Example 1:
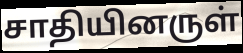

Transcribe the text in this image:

சாதியினருள்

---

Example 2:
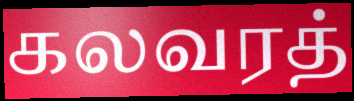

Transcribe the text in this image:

கலவரத்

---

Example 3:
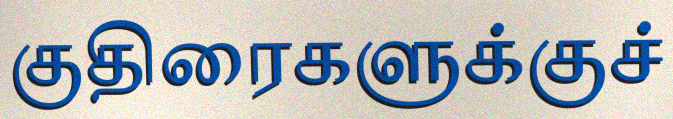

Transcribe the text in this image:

குதிரைகளுக்குச்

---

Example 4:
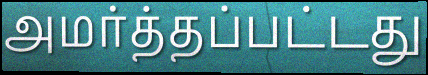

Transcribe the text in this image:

அமர்த்தப்பட்டது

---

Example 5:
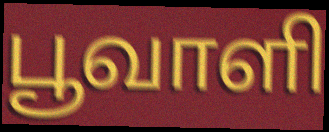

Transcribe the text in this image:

பூவாளி